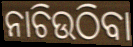
ନାଚିଉଠିବା